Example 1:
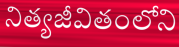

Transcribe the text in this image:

నిత్యజీవితంలోని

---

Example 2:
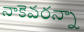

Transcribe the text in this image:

నాకెవరన్నా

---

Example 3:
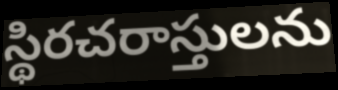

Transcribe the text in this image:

స్థిరచరాస్తులను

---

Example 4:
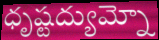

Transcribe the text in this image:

ధృష్టద్యుమ్నో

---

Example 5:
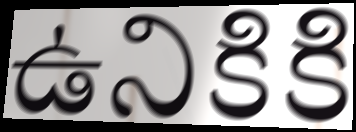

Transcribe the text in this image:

ఉనికికి